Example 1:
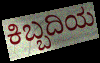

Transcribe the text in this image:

ಕಿಬ್ಬದಿಯ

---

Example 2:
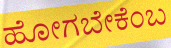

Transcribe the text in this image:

ಹೋಗಬೇಕೆಂಬ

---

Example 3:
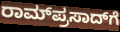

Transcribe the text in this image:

ರಾಮ್‌ಪ್ರಸಾದ್‌ಗೆ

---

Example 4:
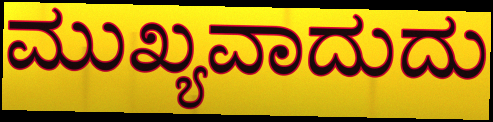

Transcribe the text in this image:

ಮುಖ್ಯವಾದುದು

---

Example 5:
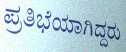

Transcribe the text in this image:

ಪ್ರತಿಭೆಯಾಗಿದ್ದರು